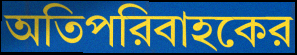
অতিপরিবাহকের